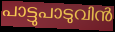
പാട്ടുപാടുവിൻ